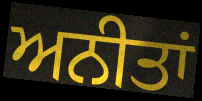
ਅਨੀਤਾਂ